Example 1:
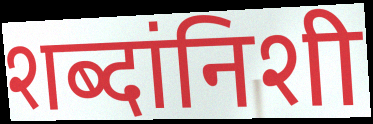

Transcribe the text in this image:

शब्दांनिशी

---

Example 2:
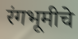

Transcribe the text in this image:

रंगभूमीचे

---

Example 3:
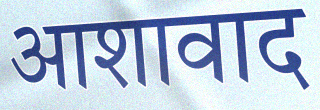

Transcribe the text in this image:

आशावाद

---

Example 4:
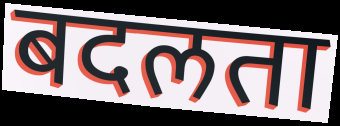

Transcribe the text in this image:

बदलता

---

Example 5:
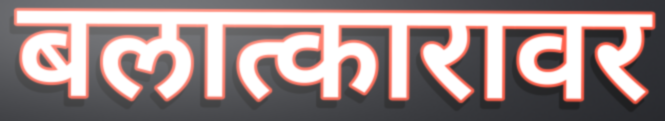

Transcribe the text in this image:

बलात्कारावर